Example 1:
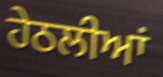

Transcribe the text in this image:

ਹੇਠਲੀਆਂ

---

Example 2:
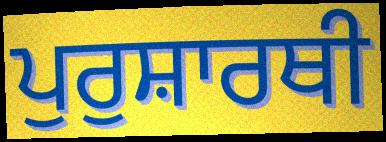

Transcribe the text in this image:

ਪੁਰੁਸ਼ਾਰਥੀ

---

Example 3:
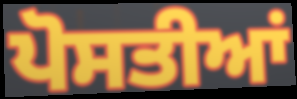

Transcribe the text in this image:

ਪੋਸਤੀਆਂ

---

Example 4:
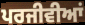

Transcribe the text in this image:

ਪਰਜੀਵੀਆਂ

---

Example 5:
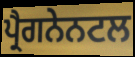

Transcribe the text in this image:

ਪ੍ਰੈਗਨੇਨਟਲ